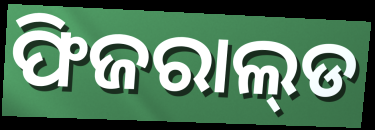
ଫିଜରାଲ୍‌ଡ